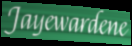
Jayewardene